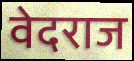
वेदराज